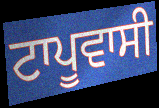
ਟਾਪੂਵਾਸੀ